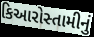
કિઆરોસ્તામીનું